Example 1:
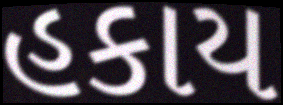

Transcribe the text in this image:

હકાય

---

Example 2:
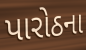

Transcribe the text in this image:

પારોઠના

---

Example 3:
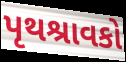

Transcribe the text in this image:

પૃથશ્રાવકો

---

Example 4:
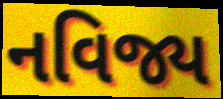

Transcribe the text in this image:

નવિજ્ય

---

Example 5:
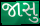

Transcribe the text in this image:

જાસુ